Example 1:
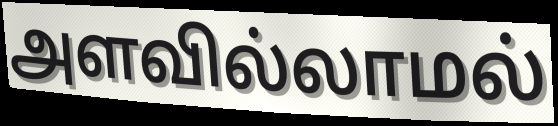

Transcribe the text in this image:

அளவில்லாமல்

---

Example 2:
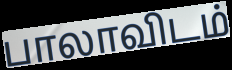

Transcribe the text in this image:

பாலாவிடம்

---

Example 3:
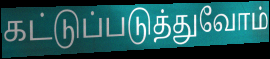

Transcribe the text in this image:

கட்டுப்படுத்துவோம்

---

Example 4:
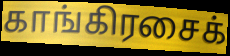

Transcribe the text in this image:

காங்கிரசைக்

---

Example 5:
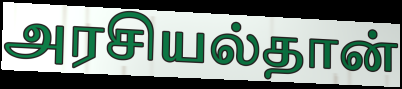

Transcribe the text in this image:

அரசியல்தான்